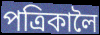
পত্ৰিকালৈ